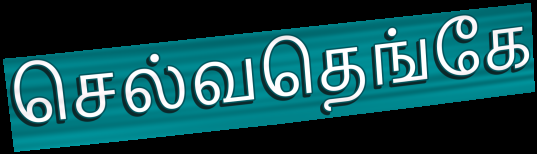
செல்வதெங்கே